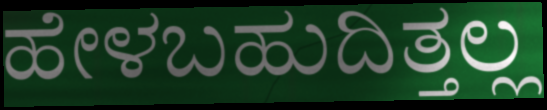
ಹೇಳಬಹುದಿತ್ತಲ್ಲ